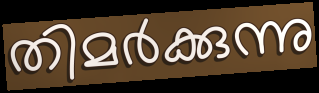
തിമർക്കുന്നു